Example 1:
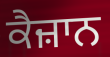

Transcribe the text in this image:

ਕੈਜ਼ਾਨ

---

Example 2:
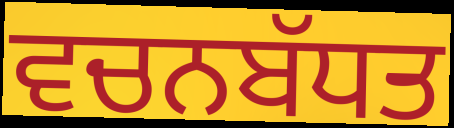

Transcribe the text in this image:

ਵਚਨਬੱਧਤ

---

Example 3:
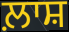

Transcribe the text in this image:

ਲ਼ਾਸ਼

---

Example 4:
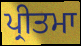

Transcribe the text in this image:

ਪ੍ਰੀਤਮਾ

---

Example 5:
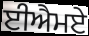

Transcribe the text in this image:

ਈਐਮਏ